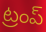
ట్రంప్